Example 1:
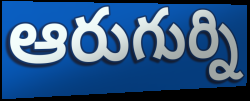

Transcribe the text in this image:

ఆరుగుర్ని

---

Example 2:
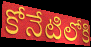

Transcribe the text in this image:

కోనేటిలోకి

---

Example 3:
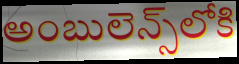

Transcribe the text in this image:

అంబులెన్స్‌లోకి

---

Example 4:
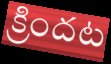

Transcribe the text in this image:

క్రిందట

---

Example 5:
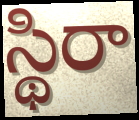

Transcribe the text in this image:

స్థిరా